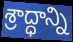
శ్రాద్ధాన్ని